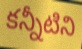
కన్నీటిని